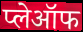
प्लेऑफ